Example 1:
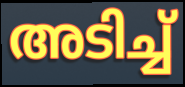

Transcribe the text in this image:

അടിച്ച്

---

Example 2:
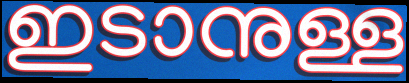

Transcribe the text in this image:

ഇടാനുള്ള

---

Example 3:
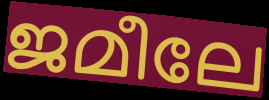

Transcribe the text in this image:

ജമീലേ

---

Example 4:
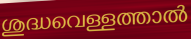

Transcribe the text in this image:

ശുദ്ധവെള്ളത്താൽ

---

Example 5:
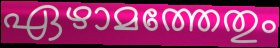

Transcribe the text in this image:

ഏഴാമത്തേതും